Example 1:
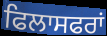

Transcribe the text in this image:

ਫਿਲਾਸਫਰਾਂ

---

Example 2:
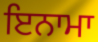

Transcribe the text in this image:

ਇਨਾਮਾ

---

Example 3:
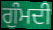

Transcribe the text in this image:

ਗੁੰਮਦੀ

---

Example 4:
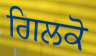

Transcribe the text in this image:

ਗਿਲਕੋ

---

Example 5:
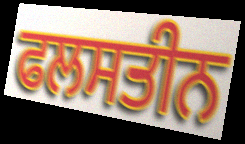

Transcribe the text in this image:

ਫਲਸਤੀਨ